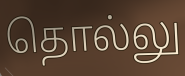
தொல்லு